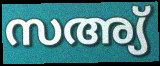
സഅ്യ്